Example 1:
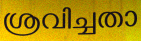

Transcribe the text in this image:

ശ്രവിച്ചതാ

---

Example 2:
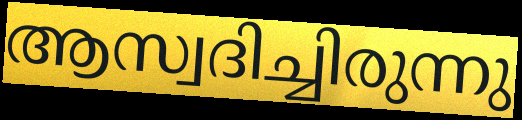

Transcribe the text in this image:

ആസ്വദിച്ചിരുന്നു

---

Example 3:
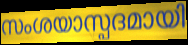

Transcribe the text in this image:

സംശയാസ്പദമായി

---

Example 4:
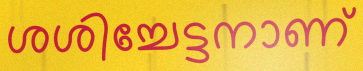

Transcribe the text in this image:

ശശിച്ചേട്ടനാണ്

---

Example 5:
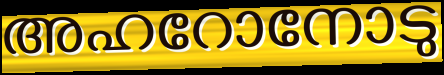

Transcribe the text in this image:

അഹറോനോടു